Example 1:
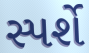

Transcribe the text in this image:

સ્પર્શે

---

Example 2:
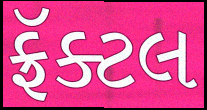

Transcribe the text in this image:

ફ્રૅક્ટલ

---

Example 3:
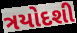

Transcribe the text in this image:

ત્રયોદશી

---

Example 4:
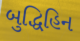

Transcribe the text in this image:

બુદ્ધિહિન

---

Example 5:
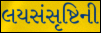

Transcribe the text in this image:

લયસંસૃષ્ટિની